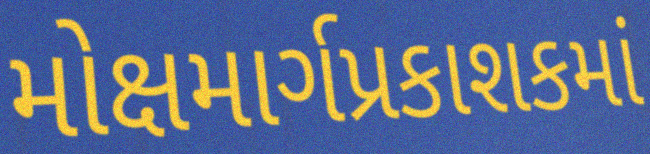
મોક્ષમાર્ગપ્રકાશકમાં